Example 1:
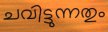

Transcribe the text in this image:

ചവിട്ടുന്നതും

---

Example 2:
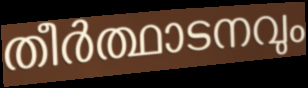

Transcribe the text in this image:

തീർത്ഥാടനവും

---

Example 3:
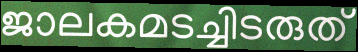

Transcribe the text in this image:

ജാലകമടച്ചിടരുത്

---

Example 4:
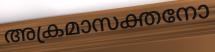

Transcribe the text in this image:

അക്രമാസക്തനോ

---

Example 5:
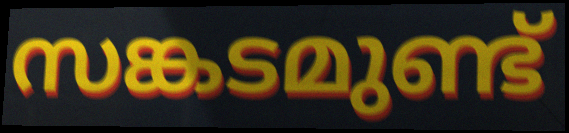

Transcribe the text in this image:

സങ്കടമുണ്ട്